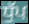
ਧੁੱਪ